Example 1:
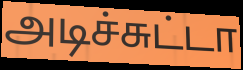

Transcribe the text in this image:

அடிச்சுட்டா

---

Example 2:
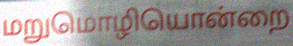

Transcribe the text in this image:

மறுமொழியொன்றை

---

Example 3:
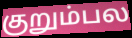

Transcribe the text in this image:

குறும்பல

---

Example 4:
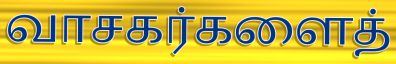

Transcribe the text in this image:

வாசகர்களைத்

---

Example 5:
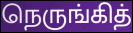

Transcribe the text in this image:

நெருங்கித்